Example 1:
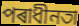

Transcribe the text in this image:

পৰাধীনতা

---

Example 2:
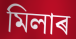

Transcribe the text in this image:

মিলাৰ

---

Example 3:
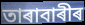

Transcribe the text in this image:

তাৰাবাৰীৰ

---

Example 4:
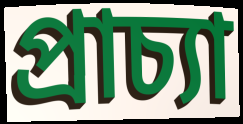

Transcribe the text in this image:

প্ৰাচ্যা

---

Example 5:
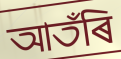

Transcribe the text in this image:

আতঁৰি